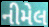
નીમેલ